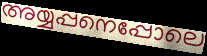
അയ്യപ്പനെപ്പോലെ